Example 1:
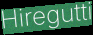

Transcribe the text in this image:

Hiregutti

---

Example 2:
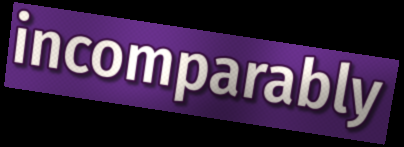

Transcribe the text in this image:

incomparably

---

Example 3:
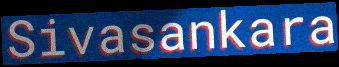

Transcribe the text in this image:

Sivasankara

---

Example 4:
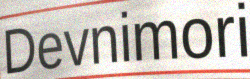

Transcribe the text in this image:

Devnimori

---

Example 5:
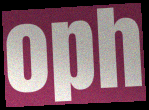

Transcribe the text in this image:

oph